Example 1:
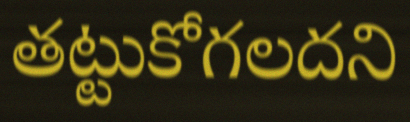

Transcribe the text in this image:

తట్టుకోగలదని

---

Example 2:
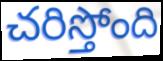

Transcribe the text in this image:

చరిస్తోంది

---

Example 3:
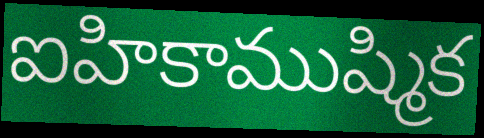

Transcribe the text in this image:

ఐహికాముష్మిక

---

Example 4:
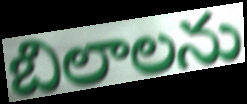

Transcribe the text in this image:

బిలాలను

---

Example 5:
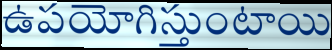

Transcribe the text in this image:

ఉపయోగిస్తుంటాయి